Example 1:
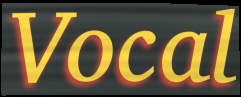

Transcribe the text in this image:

Vocal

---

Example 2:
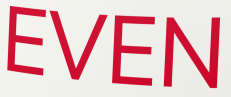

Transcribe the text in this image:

EVEN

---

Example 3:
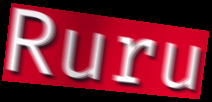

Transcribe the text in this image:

Ruru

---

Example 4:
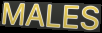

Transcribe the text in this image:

MALES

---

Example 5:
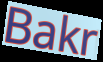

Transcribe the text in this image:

Bakr